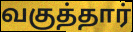
வகுத்தார்